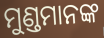
ମୁଣ୍ଡମାନଙ୍କ